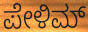
ಪೇಳಿಮ್